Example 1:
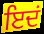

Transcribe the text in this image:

ਇਦਂ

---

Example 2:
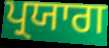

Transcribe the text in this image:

ਪ੍ਰਯਾਗ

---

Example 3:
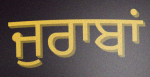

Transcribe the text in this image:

ਜੁਰਾਬਾਂ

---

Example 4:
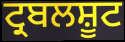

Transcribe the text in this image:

ਟ੍ਰਬਲਸ਼ੂਟ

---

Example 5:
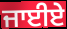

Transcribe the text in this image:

ਜਾਈਏ